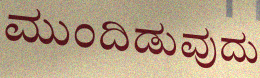
ಮುಂದಿಡುವುದು